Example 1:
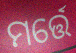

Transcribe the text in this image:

ମର୍ତ୍ତେ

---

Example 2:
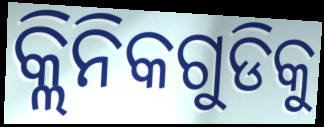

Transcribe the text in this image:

କ୍ଲିନିକଗୁଡିକୁ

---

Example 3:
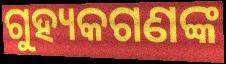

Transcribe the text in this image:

ଗୁହ୍ୟକଗଣଙ୍କ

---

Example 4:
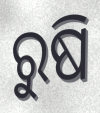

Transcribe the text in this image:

ରୁଷି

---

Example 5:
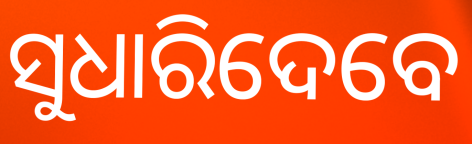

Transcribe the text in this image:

ସୁଧାରିଦେବେ